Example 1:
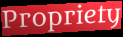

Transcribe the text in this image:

Propriety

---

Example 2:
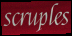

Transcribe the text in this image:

scruples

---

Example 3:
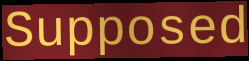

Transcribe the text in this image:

Supposed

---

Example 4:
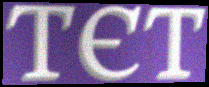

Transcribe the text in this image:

TET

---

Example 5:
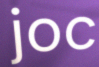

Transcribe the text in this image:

joc